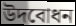
উদবোধন